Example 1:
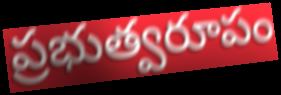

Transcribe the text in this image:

ప్రభుత్వరూపం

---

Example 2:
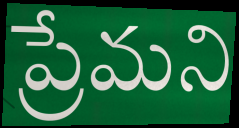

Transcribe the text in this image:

ప్రేమని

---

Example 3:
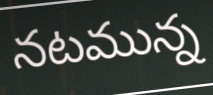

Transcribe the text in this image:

నటమున్న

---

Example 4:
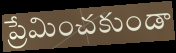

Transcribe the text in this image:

ప్రేమించకుండా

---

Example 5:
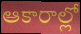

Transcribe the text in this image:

ఆకారాల్లో